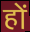
हों